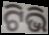
ଟିଭି